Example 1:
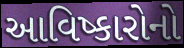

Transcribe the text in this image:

આવિષ્કારોનો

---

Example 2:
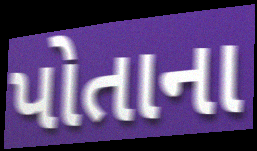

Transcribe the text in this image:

પોતાના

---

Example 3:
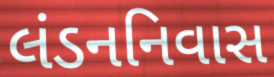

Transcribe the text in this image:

લંડનનિવાસ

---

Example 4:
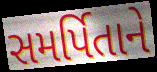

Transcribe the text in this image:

સમર્પિતાને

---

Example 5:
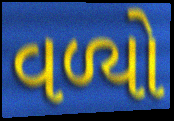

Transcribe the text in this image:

વળ્યો